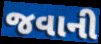
જવાની